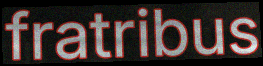
fratribus